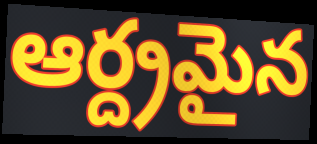
ఆర్ద్రమైన